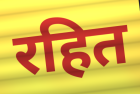
रहित